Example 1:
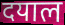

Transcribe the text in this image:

दयाल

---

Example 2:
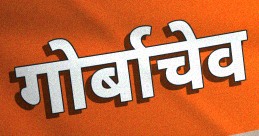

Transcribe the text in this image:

गोर्बाचेव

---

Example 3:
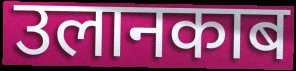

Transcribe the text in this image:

उलानकाब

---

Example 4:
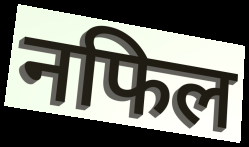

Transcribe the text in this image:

नफिल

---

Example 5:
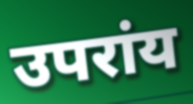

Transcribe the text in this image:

उपरांय